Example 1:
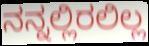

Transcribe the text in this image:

ನನ್ನಲ್ಲಿರಲಿಲ್ಲ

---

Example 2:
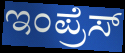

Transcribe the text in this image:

ಇಂಪ್ರೆಸ್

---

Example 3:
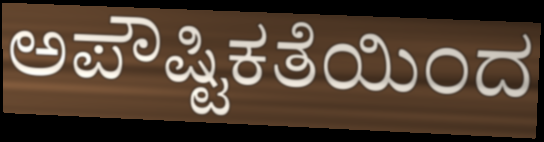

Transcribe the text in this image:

ಅಪೌಷ್ಟಿಕತೆಯಿಂದ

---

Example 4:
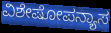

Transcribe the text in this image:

ವಿಶೇಷೋಪನ್ಯಾಸ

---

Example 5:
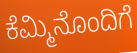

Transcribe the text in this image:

ಕೆಮ್ಮಿನೊಂದಿಗೆ